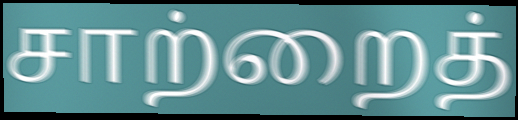
சாற்றைத்